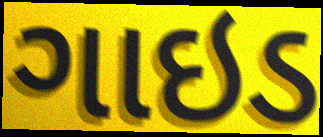
ગાઇડ